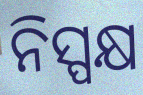
ନିସ୍ପକ୍ଷ